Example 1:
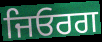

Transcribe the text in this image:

ਜਿਓਰਗ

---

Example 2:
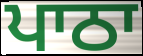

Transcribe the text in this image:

ਪਾਠਾ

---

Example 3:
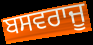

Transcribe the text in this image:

ਬਸਵਰਾਜੂ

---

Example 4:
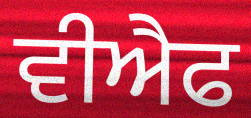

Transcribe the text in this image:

ਵੀਐਫ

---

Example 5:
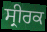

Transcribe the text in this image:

ਸ੍ਰੀਰਕ